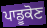
ਪਾਡੂਕੋਣ